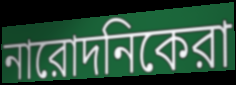
নারোদনিকেরা